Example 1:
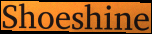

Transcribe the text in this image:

Shoeshine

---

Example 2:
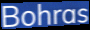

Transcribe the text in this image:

Bohras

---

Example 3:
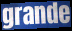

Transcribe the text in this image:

grande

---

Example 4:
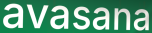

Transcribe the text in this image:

avasana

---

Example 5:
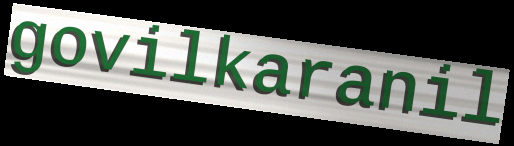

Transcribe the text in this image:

govilkaranil